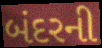
બંદરની